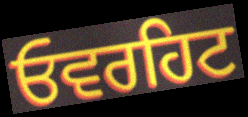
ਓਵਰਹਿਟ